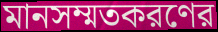
মানসম্মতকরণের